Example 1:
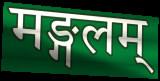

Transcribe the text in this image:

मङ्गलम्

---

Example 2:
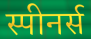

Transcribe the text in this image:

स्पीनर्स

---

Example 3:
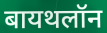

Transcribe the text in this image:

बायथलॉन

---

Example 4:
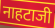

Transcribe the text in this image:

नाहटाजी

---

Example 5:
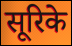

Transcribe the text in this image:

सूरिके